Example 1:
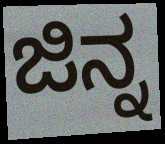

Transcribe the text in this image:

ಜಿನ್ನ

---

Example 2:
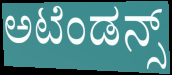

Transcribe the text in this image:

ಅಟೆಂಡನ್ಸ್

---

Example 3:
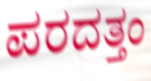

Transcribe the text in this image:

ಪರದತ್ತಂ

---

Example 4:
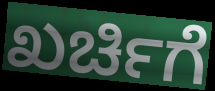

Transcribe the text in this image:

ಖರ್ಚಿಗೆ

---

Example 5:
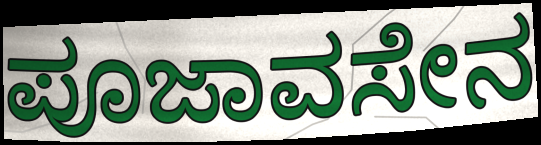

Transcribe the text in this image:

ಪೂಜಾವಸೇನ